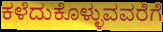
ಕಳೆದುಕೊಳ್ಳುವವರೆಗೆ